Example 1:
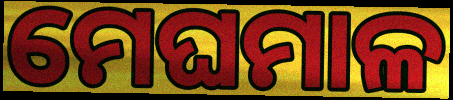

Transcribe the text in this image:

ମେଘମାଳ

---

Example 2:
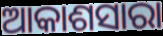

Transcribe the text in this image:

ଆକାଶସାରା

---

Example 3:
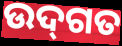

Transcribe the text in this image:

ଉଦ୍‌ଗତ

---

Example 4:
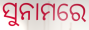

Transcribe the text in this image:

ସୁନାମରେ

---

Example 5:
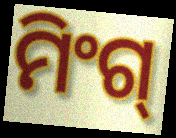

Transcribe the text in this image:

ମିଂଗ୍